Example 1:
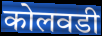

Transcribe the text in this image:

कोलवडी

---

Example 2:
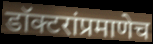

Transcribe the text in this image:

डॉक्टरांप्रमाणेच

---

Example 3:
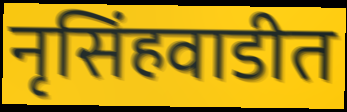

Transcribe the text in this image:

नृसिंहवाडीत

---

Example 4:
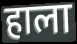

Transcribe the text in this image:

हाला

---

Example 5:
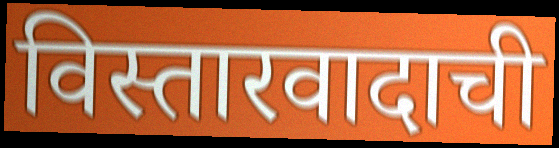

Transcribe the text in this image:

विस्तारवादाची